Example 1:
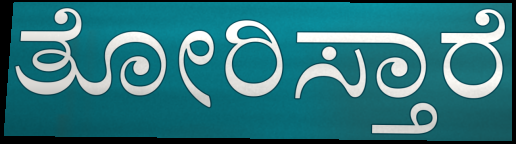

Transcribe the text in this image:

ತೋರಿಸ್ತಾರೆ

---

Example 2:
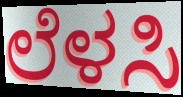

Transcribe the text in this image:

ಲೆಳಸಿ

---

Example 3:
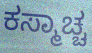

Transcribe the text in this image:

ಕಸ್ಮಾಚ್ಚ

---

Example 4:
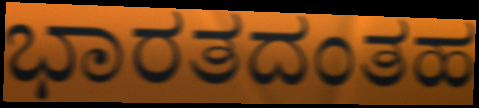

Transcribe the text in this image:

ಭಾರತದಂತಹ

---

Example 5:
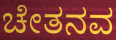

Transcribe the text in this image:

ಚೇತನವ